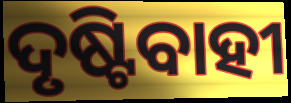
ଦୃଷ୍ଟିବାହୀ